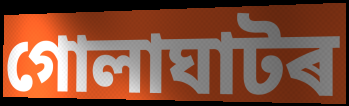
গোলাঘাটৰ